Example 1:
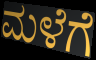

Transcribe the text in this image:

ಮಳೆಗೆ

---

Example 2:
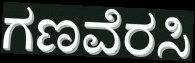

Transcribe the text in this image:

ಗಣವೆರಸಿ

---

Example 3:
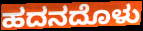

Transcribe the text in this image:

ಹದನದೊಳು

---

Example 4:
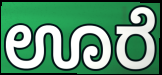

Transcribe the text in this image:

ಊರೆ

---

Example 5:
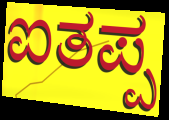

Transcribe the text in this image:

ಐತಪ್ಪ